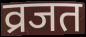
व्रजत